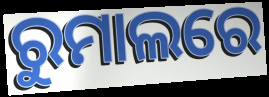
ରୁମାଲରେ